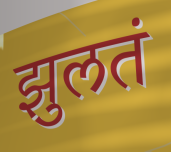
झुलतं